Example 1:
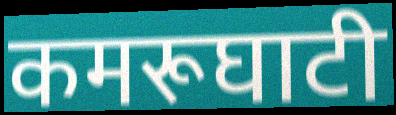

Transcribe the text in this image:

कमरूघाटी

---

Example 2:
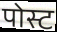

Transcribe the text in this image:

पोस्‍ट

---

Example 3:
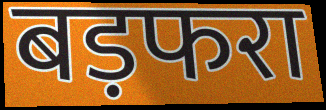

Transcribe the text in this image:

बड़फरा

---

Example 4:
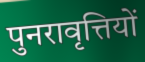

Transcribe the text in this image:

पुनरावृत्तियों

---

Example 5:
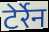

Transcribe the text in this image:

टेर्रेन